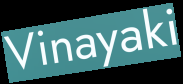
Vinayaki